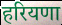
हरियणा